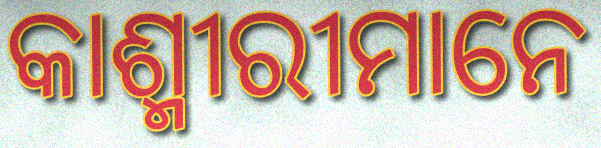
କାଶ୍ମୀରୀମାନେ